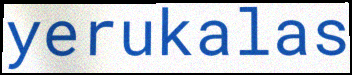
yerukalas